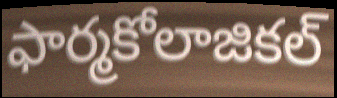
ఫార్మకోలాజికల్